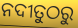
ନଦୀତୁଠରୁ